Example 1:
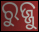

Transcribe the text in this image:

ରୁଜ୍ଜୁ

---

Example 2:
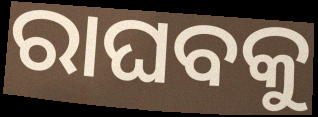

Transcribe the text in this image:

ରାଘବକୁ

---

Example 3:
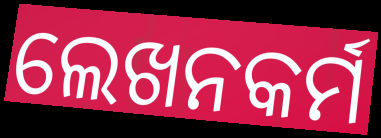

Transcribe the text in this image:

ଲେଖନକର୍ମ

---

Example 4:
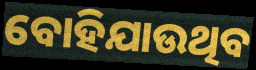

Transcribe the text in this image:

ବୋହିଯାଉଥିବ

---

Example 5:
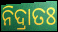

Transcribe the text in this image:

ନିଦ୍ରାତଃ